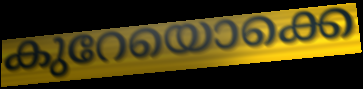
കുറേയൊക്കെ